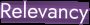
Relevancy